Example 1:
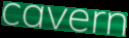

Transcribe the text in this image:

cavern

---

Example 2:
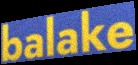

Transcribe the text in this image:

balake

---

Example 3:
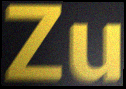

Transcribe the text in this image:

Zu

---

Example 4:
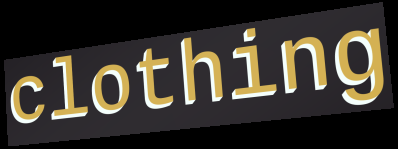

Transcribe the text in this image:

clothing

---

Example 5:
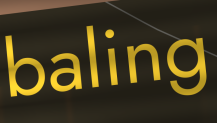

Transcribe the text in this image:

baling